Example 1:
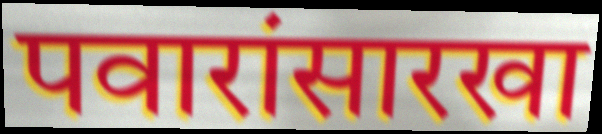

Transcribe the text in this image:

पवारांसारखा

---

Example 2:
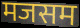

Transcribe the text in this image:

मजसम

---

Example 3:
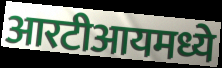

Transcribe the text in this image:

आरटीआयमध्ये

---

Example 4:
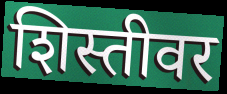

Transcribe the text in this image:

शिस्तीवर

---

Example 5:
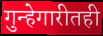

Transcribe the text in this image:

गुन्हेगारीतही